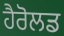
ਹੈਰੋਲਡ